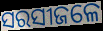
ସରସୀଜଳେ